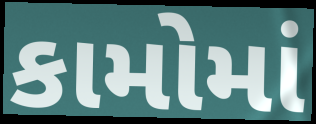
કામોમાં